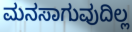
ಮನಸಾಗುವುದಿಲ್ಲ